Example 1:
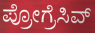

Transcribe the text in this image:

ಪ್ರೋಗ್ರೆಸಿವ್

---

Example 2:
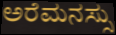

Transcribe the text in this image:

ಅರೆಮನಸ್ಸು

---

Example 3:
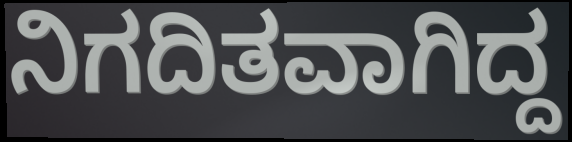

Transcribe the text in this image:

ನಿಗದಿತವಾಗಿದ್ದ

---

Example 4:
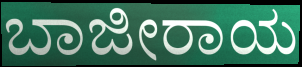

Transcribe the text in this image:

ಬಾಜೀರಾಯ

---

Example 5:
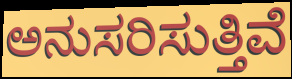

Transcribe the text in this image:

ಅನುಸರಿಸುತ್ತಿವೆ